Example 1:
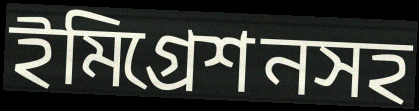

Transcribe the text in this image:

ইমিগ্রেশনসহ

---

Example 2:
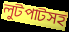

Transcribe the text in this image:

লুটপাটসহ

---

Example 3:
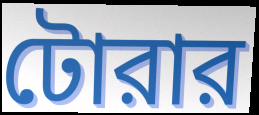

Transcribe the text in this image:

টোরার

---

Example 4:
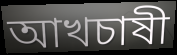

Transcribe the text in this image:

আখচাষী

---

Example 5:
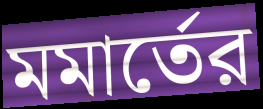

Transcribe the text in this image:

মমার্তের